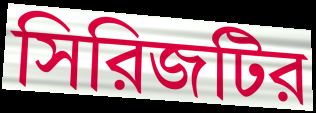
সিরিজটির